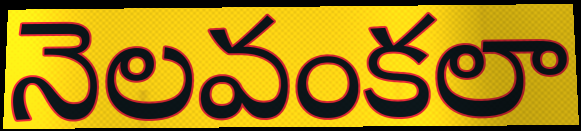
నెలవంకలా